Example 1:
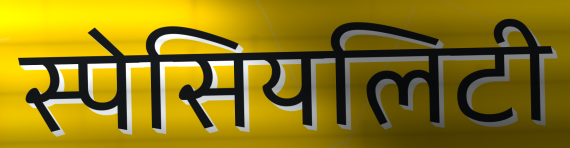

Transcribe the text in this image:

स्पेसियलिटी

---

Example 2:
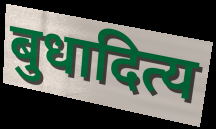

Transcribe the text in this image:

बुधादित्य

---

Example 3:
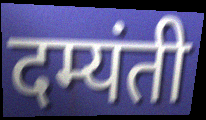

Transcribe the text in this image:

दम्यंती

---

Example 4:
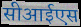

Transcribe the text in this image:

सीआईएस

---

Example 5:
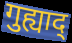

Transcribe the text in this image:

गुह्याद्